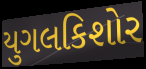
યુગલકિશોર